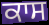
ਕਾਸ